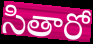
సితారో